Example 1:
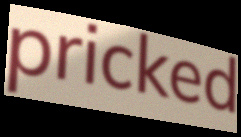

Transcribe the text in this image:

pricked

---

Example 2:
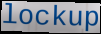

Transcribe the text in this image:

lockup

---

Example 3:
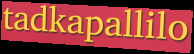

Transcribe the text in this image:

tadkapallilo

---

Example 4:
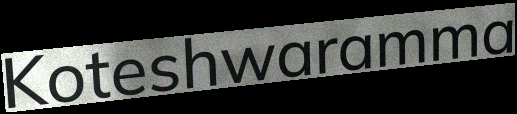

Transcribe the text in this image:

Koteshwaramma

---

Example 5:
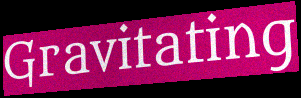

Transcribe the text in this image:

Gravitating